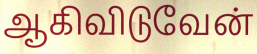
ஆகிவிடுவேன்